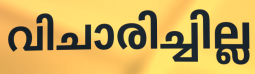
വിചാരിച്ചില്ല